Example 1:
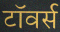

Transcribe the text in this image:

टॉवर्स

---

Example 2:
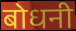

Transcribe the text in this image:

बोधनी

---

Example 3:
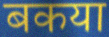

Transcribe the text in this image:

बकया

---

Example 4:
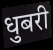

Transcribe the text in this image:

धुबरी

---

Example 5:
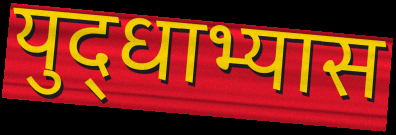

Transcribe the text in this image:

युद्धाभ्यास